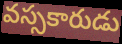
వస్సకారుడు